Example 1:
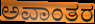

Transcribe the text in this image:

ಅವಾಂತರ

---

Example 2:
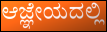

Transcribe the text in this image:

ಆಜ್ಞೇಯದಲ್ಲಿ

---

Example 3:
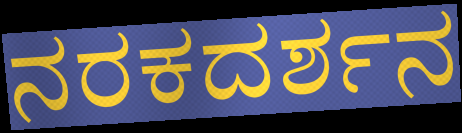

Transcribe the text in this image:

ನರಕದರ್ಶನ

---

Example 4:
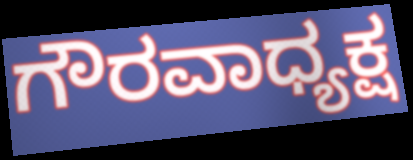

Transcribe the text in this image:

ಗೌರವಾಧ್ಯಕ್ಷ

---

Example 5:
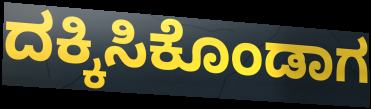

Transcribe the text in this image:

ದಕ್ಕಿಸಿಕೊಂಡಾಗ